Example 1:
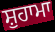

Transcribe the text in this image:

ਸ਼ੁਹਾਮਾ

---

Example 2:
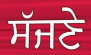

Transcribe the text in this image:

ਸੱਜਣੇ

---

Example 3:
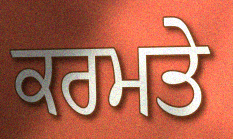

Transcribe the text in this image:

ਕਰਮਤੇ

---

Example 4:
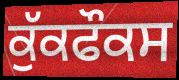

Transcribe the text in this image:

ਕੁੱਕਫੌਕਸ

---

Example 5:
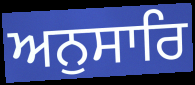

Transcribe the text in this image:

ਅਨੁਸਾਰਿ